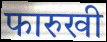
फारुखी